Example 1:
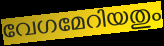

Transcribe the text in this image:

വേഗമേറിയതും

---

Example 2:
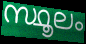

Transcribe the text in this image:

സ്ഥൂലം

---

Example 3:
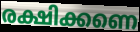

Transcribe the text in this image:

രക്ഷിക്കണെ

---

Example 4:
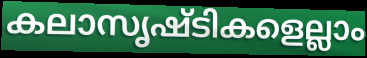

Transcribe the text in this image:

കലാസൃഷ്ടികളെല്ലാം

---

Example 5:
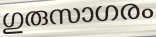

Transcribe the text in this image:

ഗുരുസാഗരം